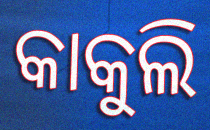
କାକୁଲି